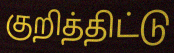
குறித்திட்டு